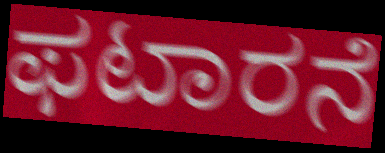
ಫಟಾರನೆ